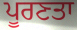
ਪੂਰਣਤਾ